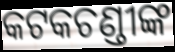
କଟକଚଣ୍ଡୀଙ୍କ